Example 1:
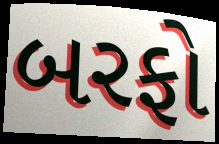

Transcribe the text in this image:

બરફો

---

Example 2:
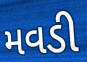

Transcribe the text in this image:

મવડી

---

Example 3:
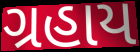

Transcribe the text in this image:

ગ્રહાય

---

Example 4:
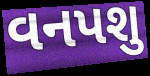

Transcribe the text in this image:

વનપશુ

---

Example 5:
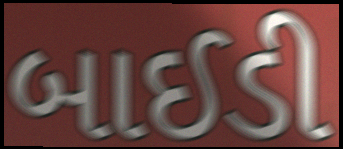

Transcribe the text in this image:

બાઈડી